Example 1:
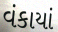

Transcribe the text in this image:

વંકાયાં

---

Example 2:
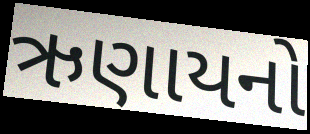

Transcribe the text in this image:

ઋણાયનો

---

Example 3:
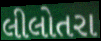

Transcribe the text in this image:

લીલોતરા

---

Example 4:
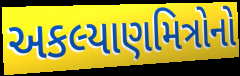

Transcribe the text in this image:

અકલ્યાણમિત્રોનો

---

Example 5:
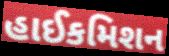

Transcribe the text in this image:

હાઈકમિશન